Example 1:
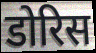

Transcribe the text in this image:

डोरिस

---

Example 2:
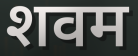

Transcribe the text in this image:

शवम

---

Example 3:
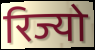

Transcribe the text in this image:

रिज्यो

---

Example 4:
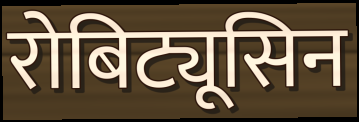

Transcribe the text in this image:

रोबिट्यूसिन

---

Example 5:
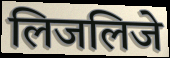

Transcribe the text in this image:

लिजलिजे